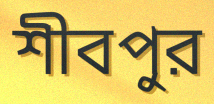
শীবপুর